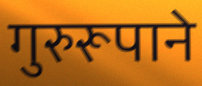
गुरुरूपाने